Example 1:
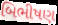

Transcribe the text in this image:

બિભીષણ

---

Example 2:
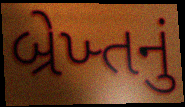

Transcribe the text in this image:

બ્રેખ્તનું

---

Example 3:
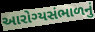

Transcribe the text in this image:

આરોગ્યસંભાળનું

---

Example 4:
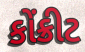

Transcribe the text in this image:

કોંક્રીટ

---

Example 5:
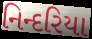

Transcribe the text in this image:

નિન્દરિયા